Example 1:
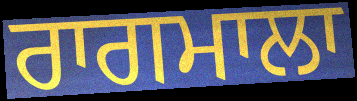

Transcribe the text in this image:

ਰਾਗਮਾਲਾ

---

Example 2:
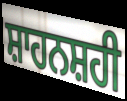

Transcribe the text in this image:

ਸ਼ਾਹਨਸ਼ਹੀ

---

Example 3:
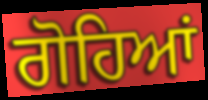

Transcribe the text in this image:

ਗੋਹਿਆਂ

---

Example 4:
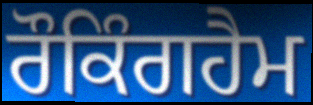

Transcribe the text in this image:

ਰੌਕਿੰਗਹੈਮ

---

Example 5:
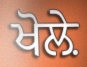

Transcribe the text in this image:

ਖੋਲ਼ੇ